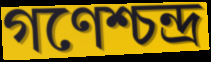
গণেশ্চন্দ্র